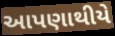
આપણાથીયે